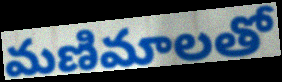
మణిమాలతో